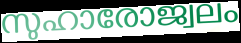
സുഹാരോജ്വലം